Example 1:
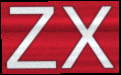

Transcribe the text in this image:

ZX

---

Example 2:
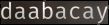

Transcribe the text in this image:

daabacay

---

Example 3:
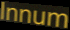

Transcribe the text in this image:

Innum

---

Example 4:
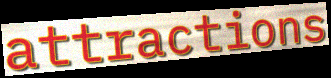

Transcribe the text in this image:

attractions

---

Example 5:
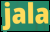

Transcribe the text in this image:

jala